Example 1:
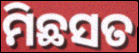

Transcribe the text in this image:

ମିଛସତ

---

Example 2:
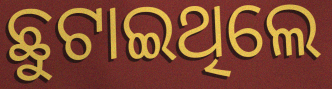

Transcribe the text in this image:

ଛୁଟାଇଥିଲେ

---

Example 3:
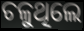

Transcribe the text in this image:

ଚଳୁଥିଲେ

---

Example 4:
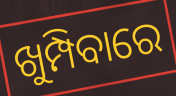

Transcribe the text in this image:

ଖୁମ୍ପିବାରେ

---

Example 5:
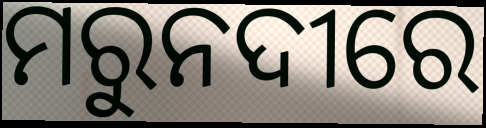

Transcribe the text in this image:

ମରୁନଦୀରେ